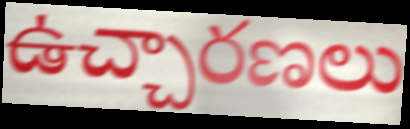
ఉచ్చారణలు